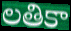
లతికా